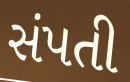
સંપતી